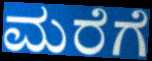
ಮರೆಗೆ